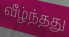
வீழ்ந்தது